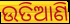
ଉତିଆଣି